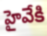
హైవేకి